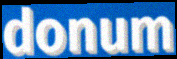
donum